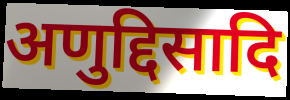
अणुद्दिसादि